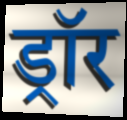
ड्रॉर